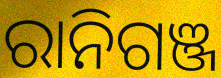
ରାନିଗଞ୍ଜ